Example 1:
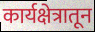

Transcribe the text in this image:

कार्यक्षेत्रातून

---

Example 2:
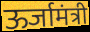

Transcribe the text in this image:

ऊर्जामंत्री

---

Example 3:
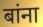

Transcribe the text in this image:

बांना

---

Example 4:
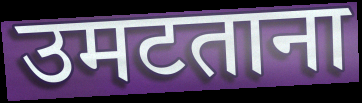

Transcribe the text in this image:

उमटताना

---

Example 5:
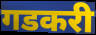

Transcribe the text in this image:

गडकरी